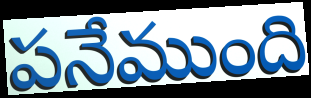
పనేముంది